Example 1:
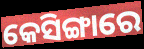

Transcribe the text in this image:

କେସିଙ୍ଗାରେ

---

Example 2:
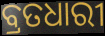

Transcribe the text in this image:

ବ୍ରତଧାରୀ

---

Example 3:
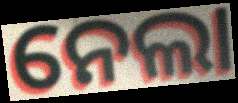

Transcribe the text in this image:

ନେଲା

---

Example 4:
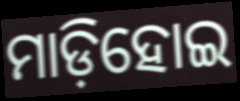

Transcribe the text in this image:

ମାଡ଼ିହୋଇ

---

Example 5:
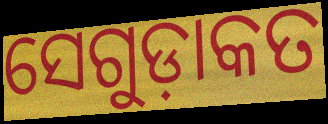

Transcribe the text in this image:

ସେଗୁଡ଼ାକତ